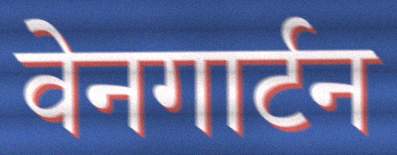
वेनगार्टन